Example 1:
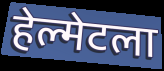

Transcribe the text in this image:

हेल्मेटला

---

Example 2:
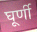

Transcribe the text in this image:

घूर्णी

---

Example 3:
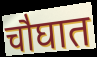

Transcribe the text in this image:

चौघात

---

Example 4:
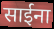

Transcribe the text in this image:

साईना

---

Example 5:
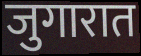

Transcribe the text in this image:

जुगारात